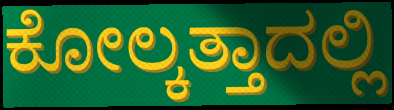
ಕೋಲ್ಕತ್ತಾದಲ್ಲಿ